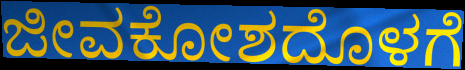
ಜೀವಕೋಶದೊಳಗೆ